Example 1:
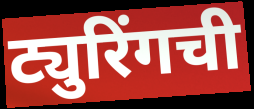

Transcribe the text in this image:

ट्युरिंगची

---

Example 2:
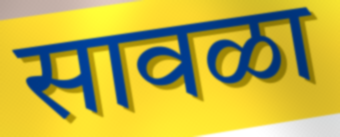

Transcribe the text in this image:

सावळा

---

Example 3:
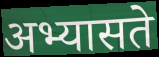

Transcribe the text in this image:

अभ्यासते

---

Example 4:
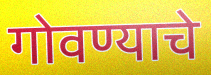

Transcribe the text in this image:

गोवण्याचे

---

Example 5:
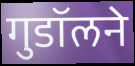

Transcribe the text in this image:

गुडॉलने